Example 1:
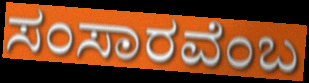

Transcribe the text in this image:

ಸಂಸಾರವೆಂಬ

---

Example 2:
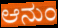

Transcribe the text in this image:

ಆನುಂ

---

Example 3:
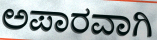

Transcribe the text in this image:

ಅಪಾರವಾಗಿ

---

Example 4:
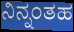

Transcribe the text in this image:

ನಿನ್ನಂತಹ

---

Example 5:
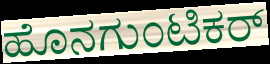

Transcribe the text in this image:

ಹೊನಗುಂಟಿಕರ್